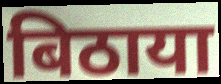
बिठाया